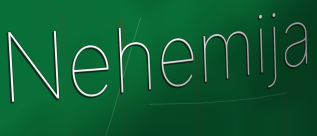
Nehemija